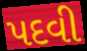
પદવી